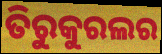
ତିରୁକୁରଲର